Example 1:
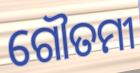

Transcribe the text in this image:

ଗୌତମୀ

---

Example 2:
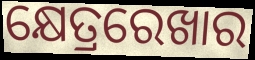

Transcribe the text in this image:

କ୍ଷେତ୍ରରେଖାର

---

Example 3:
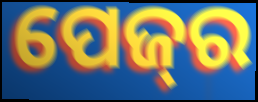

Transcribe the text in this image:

ପେଜ୍‌ର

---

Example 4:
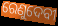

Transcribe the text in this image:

ରେଣୁଦେବୀ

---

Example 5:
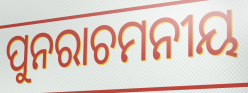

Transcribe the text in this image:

ପୁନରାଚମନୀୟ